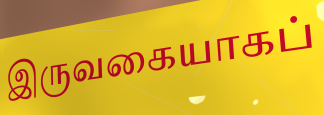
இருவகையாகப்